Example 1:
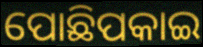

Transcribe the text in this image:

ପୋଛିପକାଇ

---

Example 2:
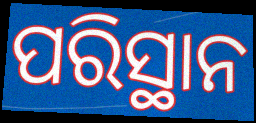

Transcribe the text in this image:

ପରିସ୍ଥାନ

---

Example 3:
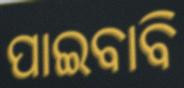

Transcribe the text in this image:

ପାଇବାବି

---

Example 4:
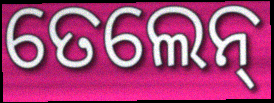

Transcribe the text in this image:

ତେଲେନ୍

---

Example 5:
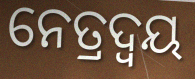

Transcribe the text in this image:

ନେତ୍ରଦ୍ଵୟ